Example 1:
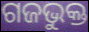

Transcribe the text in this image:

ଗଜଭୁକ୍ତ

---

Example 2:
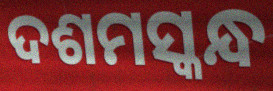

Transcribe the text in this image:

ଦଶମସ୍କନ୍ଧ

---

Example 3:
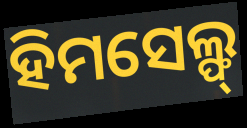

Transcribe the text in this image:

ହିମସେଲ୍ଫ୍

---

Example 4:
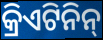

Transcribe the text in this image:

କ୍ରିଏଟିନିନ୍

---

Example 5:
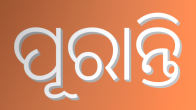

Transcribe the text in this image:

ପୂରାନ୍ତି